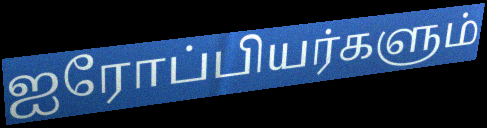
ஐரோப்பியர்களும்